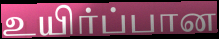
உயிர்ப்பான